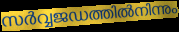
സർവ്വജഡത്തിൽനിന്നും